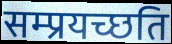
सम्प्रयच्छति